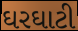
ઘરઘાટી